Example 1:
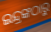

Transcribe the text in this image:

ଇନ୍ଦ୍ରଙ୍କଠାରୁ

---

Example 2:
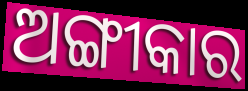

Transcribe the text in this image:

ଅଙ୍ଗୀକାର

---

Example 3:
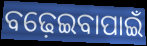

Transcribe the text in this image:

ବଢ଼େଇବାପାଇଁ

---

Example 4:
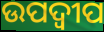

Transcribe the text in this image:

ଉପଦ୍ବୀପ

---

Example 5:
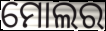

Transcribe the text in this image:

ମୋଲର